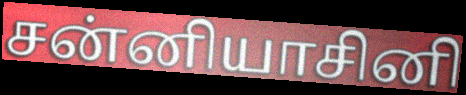
சன்னியாசினி